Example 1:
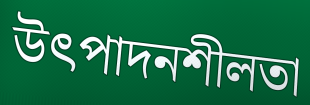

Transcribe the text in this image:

উৎপাদনশীলতা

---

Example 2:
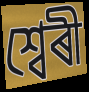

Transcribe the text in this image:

শ্বেৰী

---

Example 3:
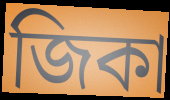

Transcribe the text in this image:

জিকা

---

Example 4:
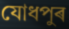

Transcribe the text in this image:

যোধপুৰ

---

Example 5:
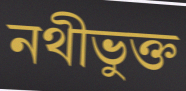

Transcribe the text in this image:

নথীভুক্ত